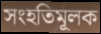
সংহতিমূলক